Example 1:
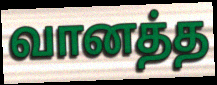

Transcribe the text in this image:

வானத்த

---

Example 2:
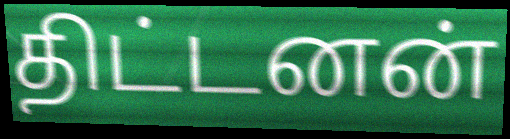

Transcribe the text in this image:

திட்டனன்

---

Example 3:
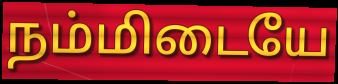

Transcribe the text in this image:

நம்மிடையே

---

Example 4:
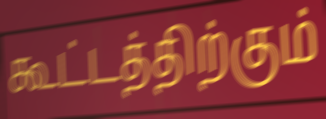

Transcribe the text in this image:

கூட்டத்திற்கும்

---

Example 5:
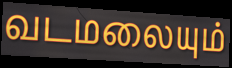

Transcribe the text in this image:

வடமலையும்